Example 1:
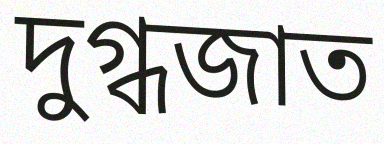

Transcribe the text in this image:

দুগ্ধজাত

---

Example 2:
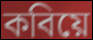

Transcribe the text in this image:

কবিয়ে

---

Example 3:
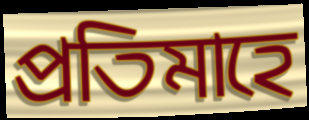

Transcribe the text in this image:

প্ৰতিমাহে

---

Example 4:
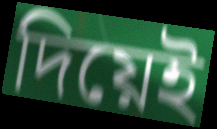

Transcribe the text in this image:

দিয়েই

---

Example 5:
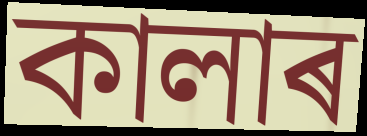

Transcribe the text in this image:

কালাৰ